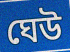
ঘেউ